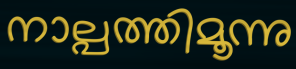
നാല്പത്തിമൂന്നു